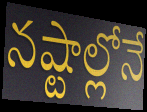
నష్టాల్లోనే